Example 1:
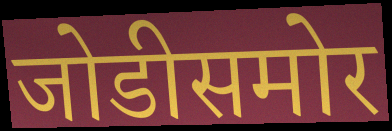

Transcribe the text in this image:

जोडीसमोर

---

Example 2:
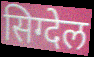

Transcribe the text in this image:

सिग्देल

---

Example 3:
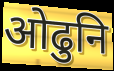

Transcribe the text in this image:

ओढुनि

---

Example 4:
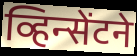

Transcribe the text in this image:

व्हिन्सेंटने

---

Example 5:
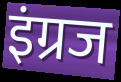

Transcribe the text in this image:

इंग्रज